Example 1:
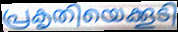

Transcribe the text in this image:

പ്രകൃതിയെക്കൂടി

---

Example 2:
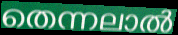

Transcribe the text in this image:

തെന്നലാൽ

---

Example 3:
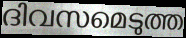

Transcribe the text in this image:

ദിവസമെടുത്ത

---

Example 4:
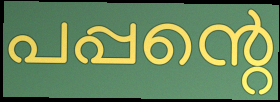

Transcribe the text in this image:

പപ്പന്റെ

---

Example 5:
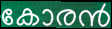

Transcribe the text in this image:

കോരൻ